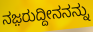
ನಜ಼ರುದ್ದೀನನನ್ನು